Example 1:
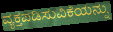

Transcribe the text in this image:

ವ್ಯಕ್ತಪಡಿಸುವಿಕೆಯನ್ನು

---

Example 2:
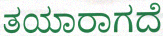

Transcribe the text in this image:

ತಯಾರಾಗದೆ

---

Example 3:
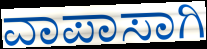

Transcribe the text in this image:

ವಾಪಾಸಾಗಿ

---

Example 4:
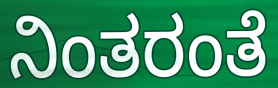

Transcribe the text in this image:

ನಿಂತರಂತೆ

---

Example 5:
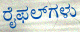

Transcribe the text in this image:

ರೈಫಲ್‌ಗಳು